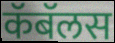
कॅबॅलस